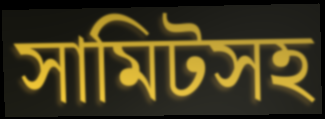
সামিটসহ